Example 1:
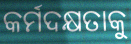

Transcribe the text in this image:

କର୍ମଦକ୍ଷତାକୁ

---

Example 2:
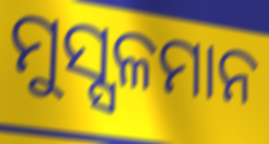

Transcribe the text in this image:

ମୁସ୍ସଳମାନ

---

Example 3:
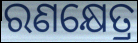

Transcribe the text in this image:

ରଣକ୍ଷେତ୍ର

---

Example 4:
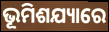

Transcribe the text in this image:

ଭୂମିଶଯ୍ୟାରେ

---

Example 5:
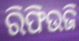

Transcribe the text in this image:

ରିଫିଉଜି